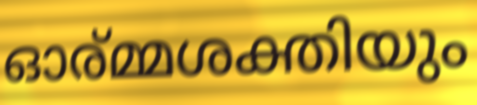
ഓര്മ്മശക്തിയും